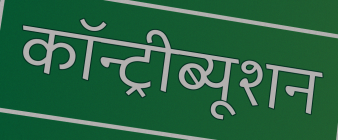
कॉन्ट्रीब्यूशन